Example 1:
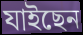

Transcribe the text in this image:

যাইছেন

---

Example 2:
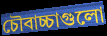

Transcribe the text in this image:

চৌবাচ্চাগুলো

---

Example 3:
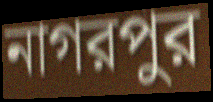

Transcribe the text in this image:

নাগরপুর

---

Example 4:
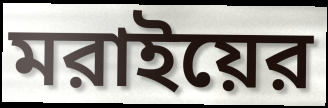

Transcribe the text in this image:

মরাইয়ের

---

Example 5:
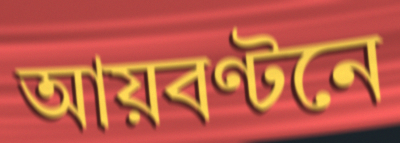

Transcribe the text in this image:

আয়বণ্টনে